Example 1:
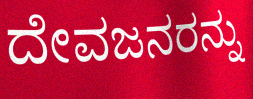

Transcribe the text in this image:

ದೇವಜನರನ್ನು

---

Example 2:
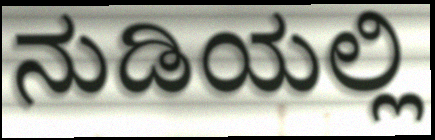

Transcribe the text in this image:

ನುಡಿಯಲ್ಲಿ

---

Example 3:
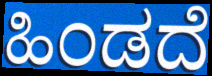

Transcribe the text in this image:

ಹಿಂಡದೆ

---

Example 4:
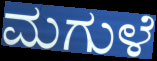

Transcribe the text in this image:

ಮಗುಳೆ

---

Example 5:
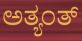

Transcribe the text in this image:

ಅತ್ಯಂತ್